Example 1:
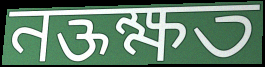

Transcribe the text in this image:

নক্তক্ষত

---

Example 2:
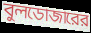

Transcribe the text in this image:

বুলডোজারের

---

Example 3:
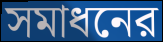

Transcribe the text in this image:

সমাধনের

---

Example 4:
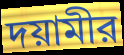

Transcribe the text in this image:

দয়ামীর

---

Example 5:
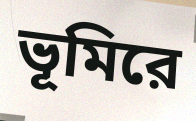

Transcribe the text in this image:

ভূমিরে